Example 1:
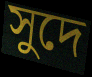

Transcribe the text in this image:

সুদে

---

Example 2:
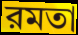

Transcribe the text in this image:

রমতা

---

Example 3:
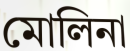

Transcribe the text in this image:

মোলিনা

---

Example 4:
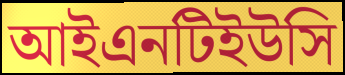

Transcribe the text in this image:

আইএনটিইউসি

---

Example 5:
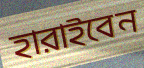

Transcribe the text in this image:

হারাইবেন